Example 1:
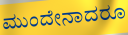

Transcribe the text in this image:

ಮುಂದೇನಾದರೂ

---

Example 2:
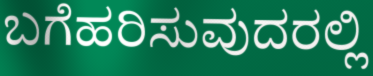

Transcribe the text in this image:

ಬಗೆಹರಿಸುವುದರಲ್ಲಿ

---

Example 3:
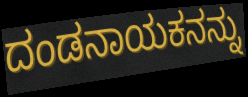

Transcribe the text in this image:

ದಂಡನಾಯಕನನ್ನು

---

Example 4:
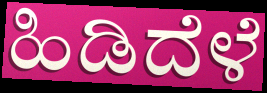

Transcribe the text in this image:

ಹಿಡಿದೆಳೆ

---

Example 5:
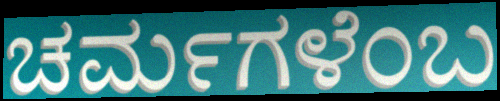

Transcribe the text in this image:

ಚರ್ಮಗಳೆಂಬ